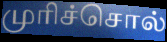
முரிச்சொல்